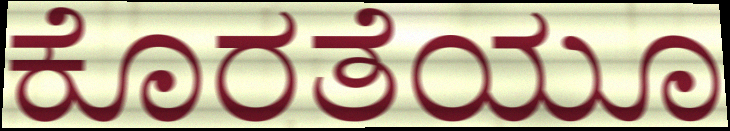
ಕೊರತೆಯೂ